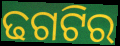
ଢଗଟିର